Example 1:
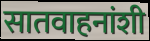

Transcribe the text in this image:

सातवाहनांशी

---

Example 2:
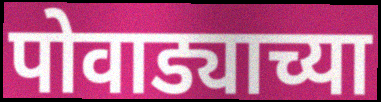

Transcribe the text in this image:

पोवाड्याच्या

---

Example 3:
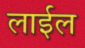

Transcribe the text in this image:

लाईल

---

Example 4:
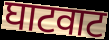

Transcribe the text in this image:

घाटवाट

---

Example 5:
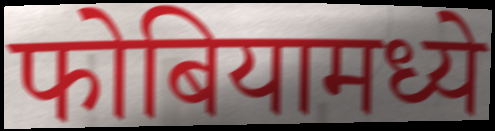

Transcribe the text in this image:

फोबियामध्ये